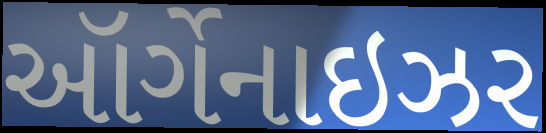
ઑર્ગેનાઇઝર